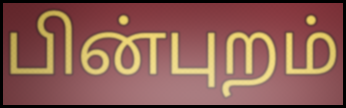
பின்புறம்